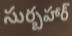
సుర్బహార్